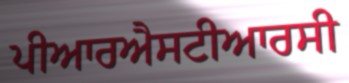
ਪੀਆਰਐਸਟੀਆਰਸੀ